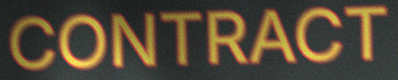
CONTRACT